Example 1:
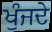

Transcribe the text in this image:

ਖੁੰਜਦੇ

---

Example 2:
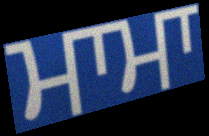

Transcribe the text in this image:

ਮਾਮਾ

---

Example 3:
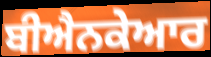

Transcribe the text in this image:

ਬੀਐਨਕੇਆਰ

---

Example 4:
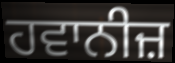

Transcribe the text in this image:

ਹਵਾਨੀਜ਼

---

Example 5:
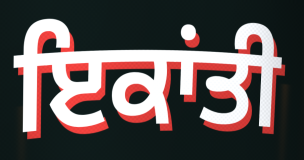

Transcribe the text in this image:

ਇਕਾਂਤੀ